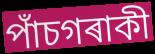
পাঁচগৰাকী